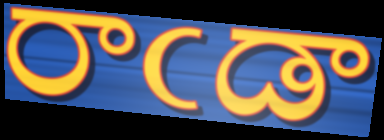
రాఁడా